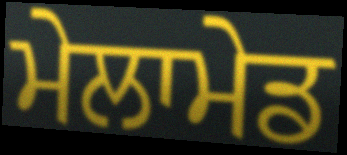
ਮੇਲਾਮੇਡ